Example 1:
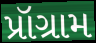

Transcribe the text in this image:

પ્રૉગ્રામ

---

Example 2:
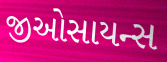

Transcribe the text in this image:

જીઓસાયન્સ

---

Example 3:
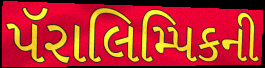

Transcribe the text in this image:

પૅરાલિમ્પિકની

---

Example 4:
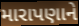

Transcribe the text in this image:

મારાપણાને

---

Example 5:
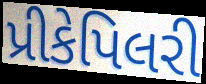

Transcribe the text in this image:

પ્રીકેપિલરી